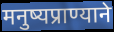
मनुष्यप्राण्याने